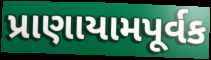
પ્રાણાયામપૂર્વક